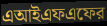
এআইএফএফের